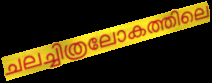
ചലച്ചിത്രലോകത്തിലെ